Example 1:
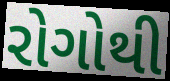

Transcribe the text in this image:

રોગોથી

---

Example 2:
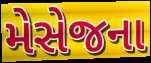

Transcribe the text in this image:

મેસેજના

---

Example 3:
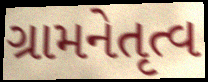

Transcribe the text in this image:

ગ્રામનેતૃત્વ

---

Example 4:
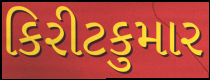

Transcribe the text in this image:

કિરીટકુમાર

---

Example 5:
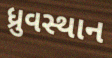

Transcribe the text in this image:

ધ્રુવસ્થાન